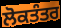
ਲੋਕਤੰਤਰ